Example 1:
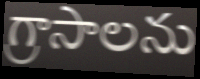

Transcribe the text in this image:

గ్రాసాలను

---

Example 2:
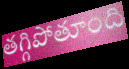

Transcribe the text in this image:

తగ్గిపోతూంది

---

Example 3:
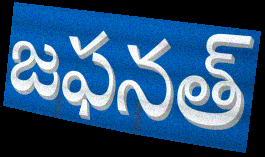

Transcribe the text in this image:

జఫనత్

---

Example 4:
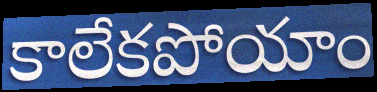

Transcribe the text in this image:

కాలేకపోయాం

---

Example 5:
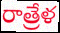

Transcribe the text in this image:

రాత్రేళ